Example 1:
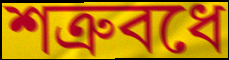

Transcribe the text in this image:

শত্রুবধে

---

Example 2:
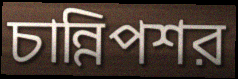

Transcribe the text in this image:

চান্নিপশর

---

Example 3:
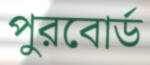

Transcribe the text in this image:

পুরবোর্ড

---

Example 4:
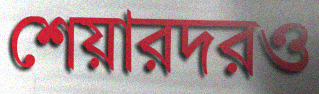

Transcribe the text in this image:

শেয়ারদরও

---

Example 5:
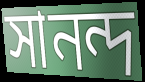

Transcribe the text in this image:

সানন্দ